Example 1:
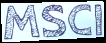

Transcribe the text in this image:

MSCI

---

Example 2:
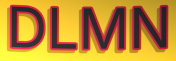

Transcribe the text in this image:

DLMN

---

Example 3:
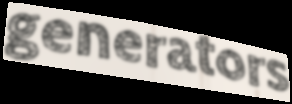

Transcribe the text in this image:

generators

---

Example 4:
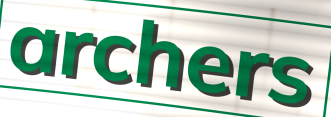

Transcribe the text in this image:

archers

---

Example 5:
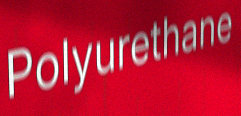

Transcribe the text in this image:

Polyurethane